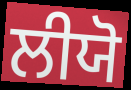
ਲੀਯੋ